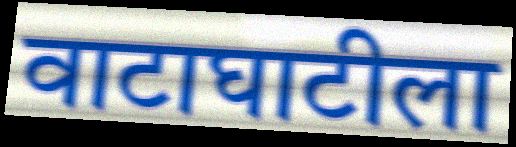
वाटाघाटीला